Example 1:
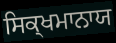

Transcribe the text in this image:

ਸਿਕ੍ਖਮਾਨਾਯ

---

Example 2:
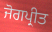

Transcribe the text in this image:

ਜੋਗਪ੍ਰੀਤ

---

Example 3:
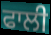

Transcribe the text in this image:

ਫਾਲੀ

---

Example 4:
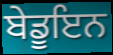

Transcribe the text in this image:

ਬੇਡੂਇਨ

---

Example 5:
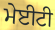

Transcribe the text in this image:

ਮੇਈਟੀ